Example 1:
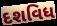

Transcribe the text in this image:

દશવિધ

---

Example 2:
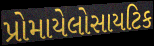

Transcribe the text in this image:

પ્રોમાયેલોસાયટિક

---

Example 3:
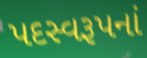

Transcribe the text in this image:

પદસ્વરૂપનાં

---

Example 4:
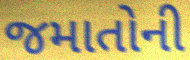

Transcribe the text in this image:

જમાતોની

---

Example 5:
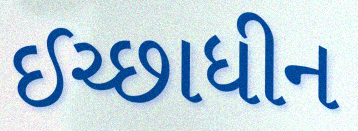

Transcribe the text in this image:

ઈચ્છાધીન